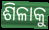
ଶିଳାକୁ